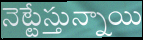
నెట్టేస్తున్నాయి